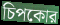
চিপকোর